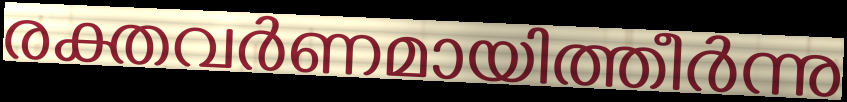
രക്തവർണമായിത്തീർന്നു